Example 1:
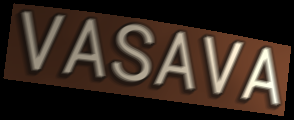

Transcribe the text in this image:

VASAVA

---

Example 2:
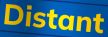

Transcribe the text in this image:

Distant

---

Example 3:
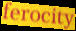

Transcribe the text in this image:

ferocity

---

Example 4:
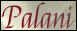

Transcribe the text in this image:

Palani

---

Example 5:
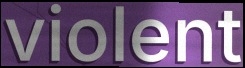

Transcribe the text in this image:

violent